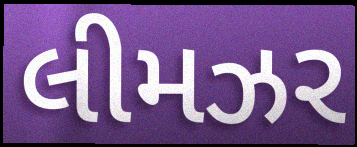
લીમઝર